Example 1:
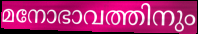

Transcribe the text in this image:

മനോഭാവത്തിനും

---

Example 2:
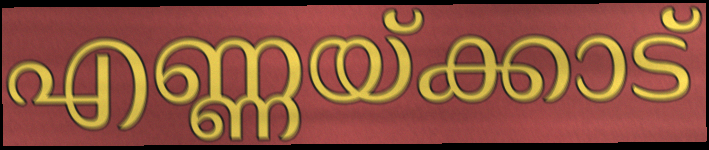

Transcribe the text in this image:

എണ്ണയ്ക്കാട്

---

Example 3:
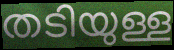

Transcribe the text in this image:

തടിയുള്ള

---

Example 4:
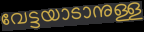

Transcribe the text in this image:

വേട്ടയാടാനുള്ള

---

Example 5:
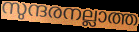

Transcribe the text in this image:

സുന്ദരനല്ലാത്ത